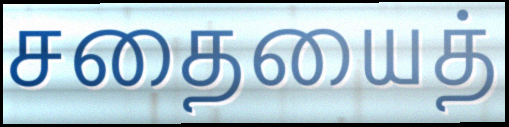
சதையைத்